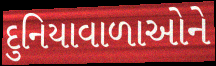
દુનિયાવાળાઓને